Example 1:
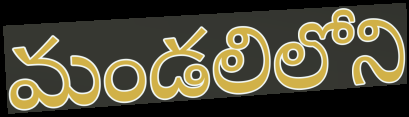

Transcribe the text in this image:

మండలిలోని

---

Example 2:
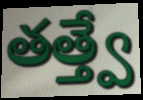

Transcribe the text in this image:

తత్త్వే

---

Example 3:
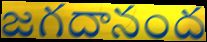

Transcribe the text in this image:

జగదానంద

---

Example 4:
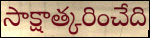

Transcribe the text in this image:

సాక్షాత్కరించేది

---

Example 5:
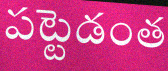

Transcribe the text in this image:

పట్టెడంత